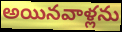
అయినవాళ్లను